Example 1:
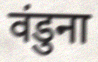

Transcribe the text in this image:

वंडुना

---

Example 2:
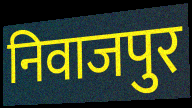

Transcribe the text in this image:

निवाजपुर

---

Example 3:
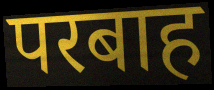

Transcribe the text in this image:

परबाह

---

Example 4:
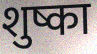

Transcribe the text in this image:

शुष्का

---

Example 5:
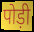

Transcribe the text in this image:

पोड़ी